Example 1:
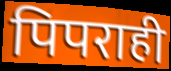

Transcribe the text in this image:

पिपराही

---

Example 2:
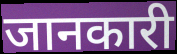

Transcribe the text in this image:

जानकारी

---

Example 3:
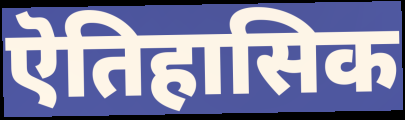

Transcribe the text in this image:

ऎतिहासिक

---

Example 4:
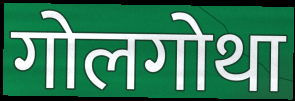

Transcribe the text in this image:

गोलगोथा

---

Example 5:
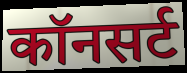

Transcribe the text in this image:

कॉनसर्ट